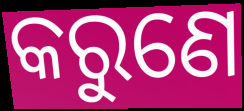
କରୁଣେ